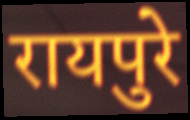
रायपुरे